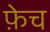
फ़ेच